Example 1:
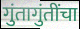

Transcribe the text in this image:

गुंतागुंतींचा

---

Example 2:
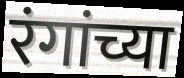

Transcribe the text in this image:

रंगांच्या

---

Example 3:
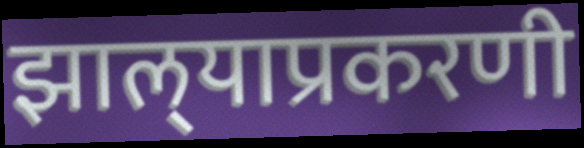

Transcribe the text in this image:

झाल्याप्रकरणी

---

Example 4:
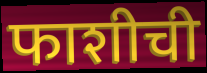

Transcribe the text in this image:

फाशीची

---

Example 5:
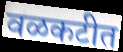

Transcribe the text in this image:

वळकटीत